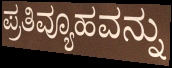
ಪ್ರತಿವ್ಯೂಹವನ್ನು